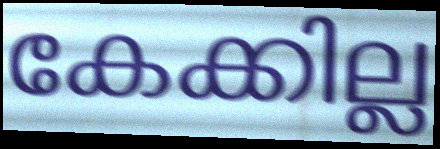
കേക്കില്ല